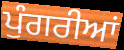
ਪੁੰਗਰੀਆਂ